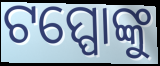
ଟପ୍ପୋଙ୍କୁ